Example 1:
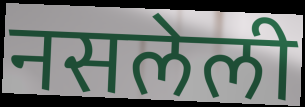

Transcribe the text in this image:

नसलेली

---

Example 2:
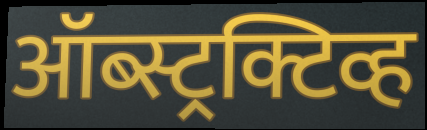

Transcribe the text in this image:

ऑब्स्ट्रक्टिव्ह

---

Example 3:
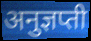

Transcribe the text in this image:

अनुज्ञप्ती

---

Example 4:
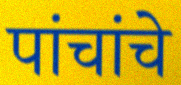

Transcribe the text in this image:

पांचांचे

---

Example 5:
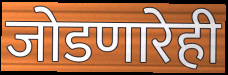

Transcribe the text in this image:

जोडणारेही